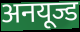
अनयूज्ड